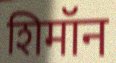
शिमॉन